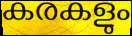
കരകളും